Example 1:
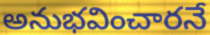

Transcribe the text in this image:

అనుభవించారనే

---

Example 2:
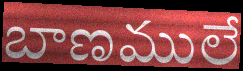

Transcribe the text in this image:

బాణములే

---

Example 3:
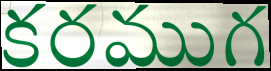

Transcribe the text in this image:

కరముగ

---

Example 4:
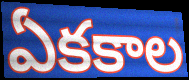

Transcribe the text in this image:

ఏకకాల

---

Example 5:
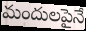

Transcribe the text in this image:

మందులపైనే